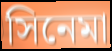
সিনেমা